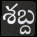
శబ్ద